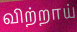
விற்றாய்